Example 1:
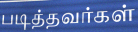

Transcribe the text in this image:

படித்தவர்கள்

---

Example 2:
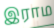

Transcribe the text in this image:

இராம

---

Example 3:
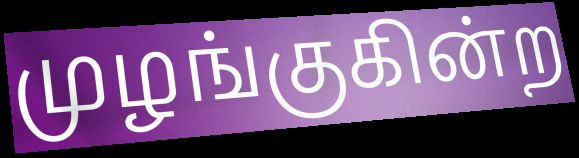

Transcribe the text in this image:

முழங்குகின்ற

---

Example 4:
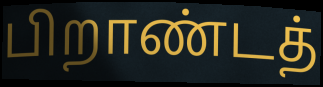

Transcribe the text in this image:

பிறாண்டத்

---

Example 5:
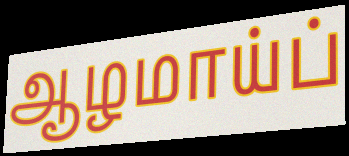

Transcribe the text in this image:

ஆழமாய்ப்